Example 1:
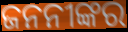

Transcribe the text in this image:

ଜନନୀଙ୍କର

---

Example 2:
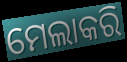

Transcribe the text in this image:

ମେଲାକରି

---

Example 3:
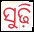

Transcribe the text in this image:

ସୁଢ଼ି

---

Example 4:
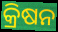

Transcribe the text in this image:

କ୍ରିଷନ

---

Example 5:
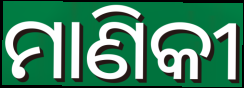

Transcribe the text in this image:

ମାଣିକୀ